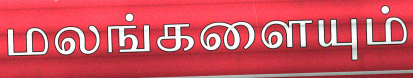
மலங்களையும்